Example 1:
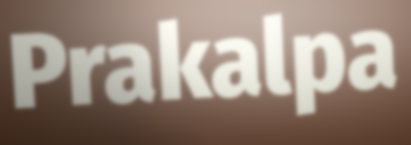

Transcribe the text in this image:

Prakalpa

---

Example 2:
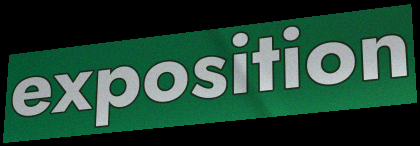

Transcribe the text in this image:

exposition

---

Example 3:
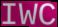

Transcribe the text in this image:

IWC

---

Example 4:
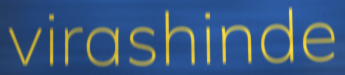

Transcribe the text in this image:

virashinde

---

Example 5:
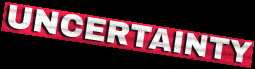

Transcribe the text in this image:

UNCERTAINTY